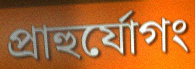
প্রাহুর্যোগং